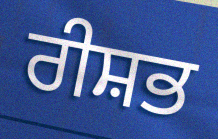
ਰੀਸ਼ਭ